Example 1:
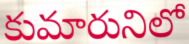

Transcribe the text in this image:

కుమారునిలో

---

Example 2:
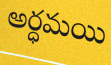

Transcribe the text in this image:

అర్ధమయి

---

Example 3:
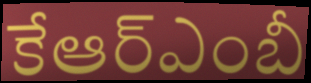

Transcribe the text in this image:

కేఆర్ఎంబీ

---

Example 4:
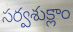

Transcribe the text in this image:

సర్వశుక్లాం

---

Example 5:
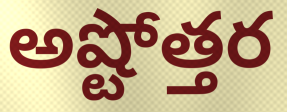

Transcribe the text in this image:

అష్టోత్తర